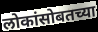
लोकांसोबतच्या